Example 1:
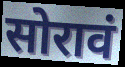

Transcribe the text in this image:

सोरावं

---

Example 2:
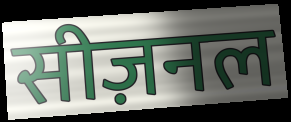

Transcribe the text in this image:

सीज़नल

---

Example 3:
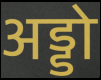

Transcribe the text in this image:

अड्डो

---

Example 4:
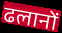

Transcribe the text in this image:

ढलानों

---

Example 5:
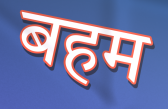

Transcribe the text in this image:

बहम